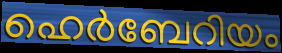
ഹെർബേറിയം